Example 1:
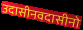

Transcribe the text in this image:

उदासीनवदासीनो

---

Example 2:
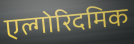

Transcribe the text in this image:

एल्गोरिदमिक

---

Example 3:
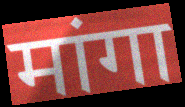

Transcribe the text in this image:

मांगा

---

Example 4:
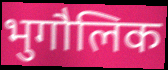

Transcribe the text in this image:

भुगौलिक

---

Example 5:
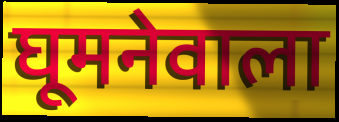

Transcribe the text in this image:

घूमनेवाला